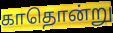
காதொன்று